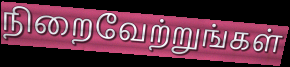
நிறைவேற்றுங்கள்